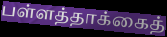
பள்ளத்தாக்கைத்